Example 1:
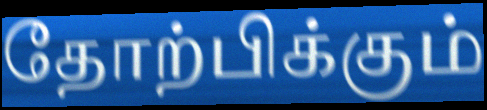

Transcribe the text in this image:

தோற்பிக்கும்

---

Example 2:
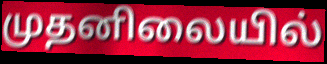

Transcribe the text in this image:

முதனிலையில்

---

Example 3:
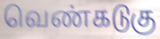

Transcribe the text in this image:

வெண்கடுகு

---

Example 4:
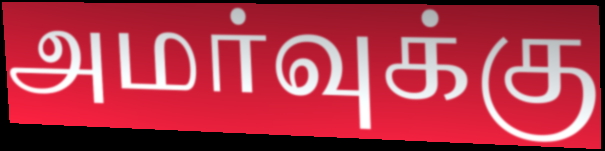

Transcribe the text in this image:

அமர்வுக்கு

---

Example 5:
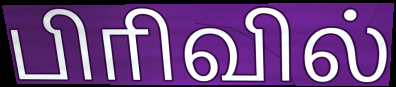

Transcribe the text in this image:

பிரிவில்